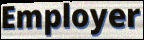
Employer